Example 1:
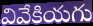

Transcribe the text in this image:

వివేకియగు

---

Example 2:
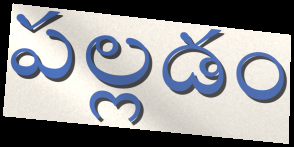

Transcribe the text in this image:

పల్లడం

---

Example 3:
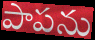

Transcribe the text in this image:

పాపను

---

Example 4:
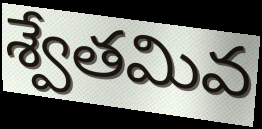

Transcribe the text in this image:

శ్వేతమివ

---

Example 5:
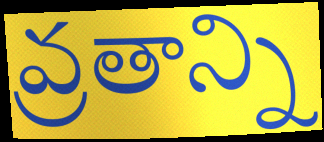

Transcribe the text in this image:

వ్రతాన్ని